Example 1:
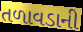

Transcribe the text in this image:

તળાવડાની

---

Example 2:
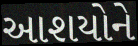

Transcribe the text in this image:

આશયોને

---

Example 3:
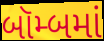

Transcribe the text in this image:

બૉમ્બમાં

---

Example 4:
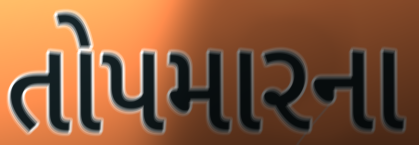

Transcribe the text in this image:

તોપમારના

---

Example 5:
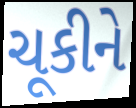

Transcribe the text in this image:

ચૂકીને